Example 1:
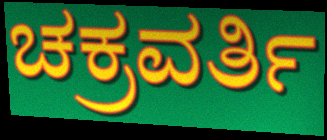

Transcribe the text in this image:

ಚಕ್ರವರ್ತಿ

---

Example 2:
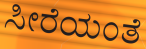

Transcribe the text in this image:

ಸೀರೆಯಂತೆ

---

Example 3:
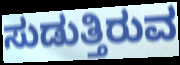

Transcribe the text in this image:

ಸುಡುತ್ತಿರುವ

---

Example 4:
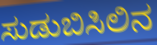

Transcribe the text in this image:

ಸುಡುಬಿಸಿಲಿನ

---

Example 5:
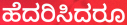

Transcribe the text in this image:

ಹೆದರಿಸಿದರೂ